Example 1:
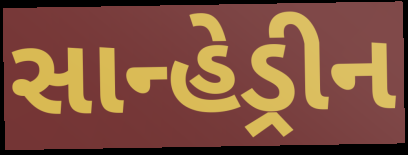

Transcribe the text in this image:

સાન્હેડ્રીન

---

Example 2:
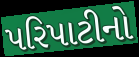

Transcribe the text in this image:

પરિપાટીનો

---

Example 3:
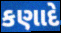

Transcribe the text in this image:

કણાદે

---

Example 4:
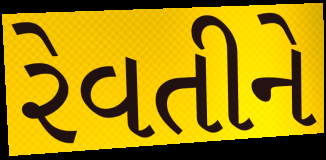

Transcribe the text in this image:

રેવતીને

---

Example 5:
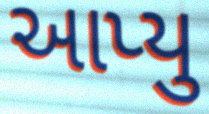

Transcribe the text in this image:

આપ્યુ